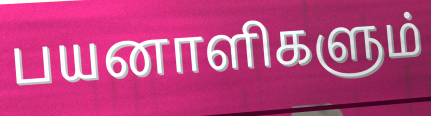
பயனாளிகளும்